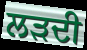
ਲੜਦੀ